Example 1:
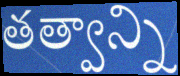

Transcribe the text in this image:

తత్వాన్ని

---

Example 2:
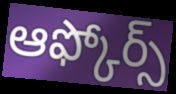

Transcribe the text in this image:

ఆఫ్కోర్స్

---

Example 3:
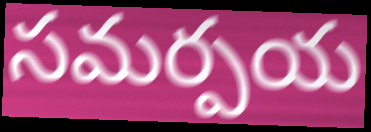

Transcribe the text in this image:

సమర్పయ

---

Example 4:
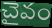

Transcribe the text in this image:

చైవం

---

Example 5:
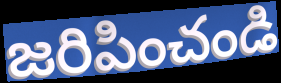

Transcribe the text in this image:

జరిపించండి